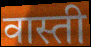
वास्ती